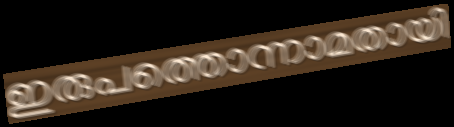
ഇരുപത്തൊന്നാമതായി